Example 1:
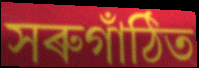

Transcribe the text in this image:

সৰুগাঁঠিত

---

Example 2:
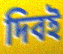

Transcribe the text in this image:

দিবই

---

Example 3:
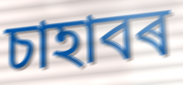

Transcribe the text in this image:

চাহাবৰ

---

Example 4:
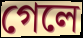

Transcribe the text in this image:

গেলে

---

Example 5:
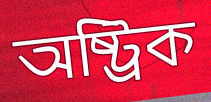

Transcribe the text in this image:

অষ্ট্ৰিক